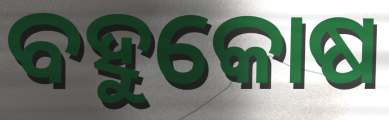
ବହୁକୋଷ